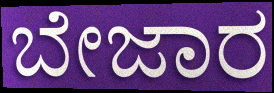
ಬೇಜಾರ